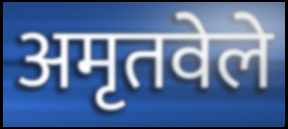
अमृतवेले